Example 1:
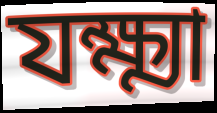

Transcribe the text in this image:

যক্ষ্মা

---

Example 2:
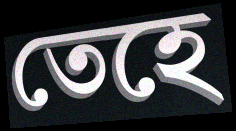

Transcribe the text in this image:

তেহে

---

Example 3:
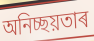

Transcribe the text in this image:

অনিচ্ছয়তাৰ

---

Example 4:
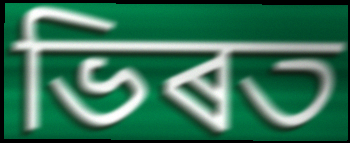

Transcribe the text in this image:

ভিৰত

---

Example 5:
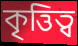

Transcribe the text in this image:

কৃত্তিত্ব